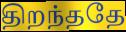
திறந்ததே